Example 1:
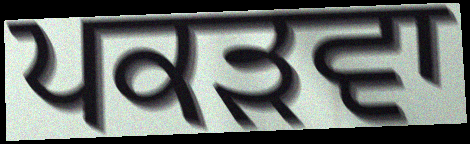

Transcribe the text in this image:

ਪਕੜਵਾ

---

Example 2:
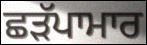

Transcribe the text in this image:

ਛੜੱਪਾਮਾਰ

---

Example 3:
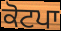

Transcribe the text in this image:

ਕੋਟਪਾ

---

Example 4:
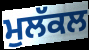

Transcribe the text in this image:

ਮੁਲੱਕਲ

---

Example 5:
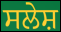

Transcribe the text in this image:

ਸਲੇਸ਼